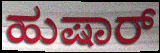
ಹುಷಾರ್